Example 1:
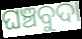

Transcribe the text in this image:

ଘଞ୍ଚବୁଦା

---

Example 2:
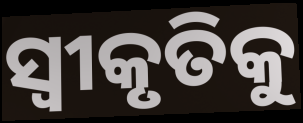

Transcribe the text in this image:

ସ୍ୱୀକୃତିକୁ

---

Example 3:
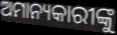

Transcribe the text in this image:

ଅମାନ୍ୟକାରୀଙ୍କୁ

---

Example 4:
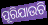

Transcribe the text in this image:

ପୂରିଯାଉଚି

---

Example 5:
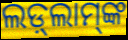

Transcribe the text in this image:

ଲଡ଼୍‍ଲାମ୍‍ଙ୍କ